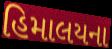
હિમાલયના